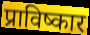
प्राविष्कार